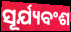
ସୂର୍ଯ୍ୟବଂଶ